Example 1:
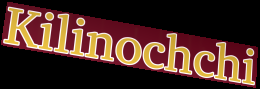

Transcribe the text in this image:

Kilinochchi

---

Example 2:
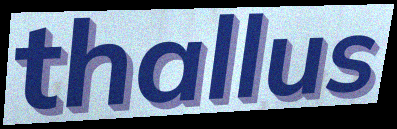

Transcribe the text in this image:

thallus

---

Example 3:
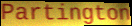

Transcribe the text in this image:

Partington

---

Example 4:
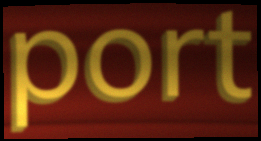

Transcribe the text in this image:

port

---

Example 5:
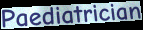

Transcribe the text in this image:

Paediatrician